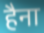
हैना